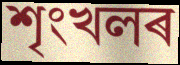
শৃংখলৰ